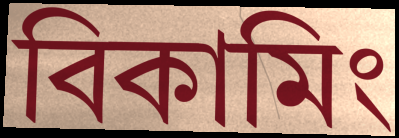
বিকামিং